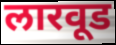
लारवूड